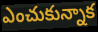
ఎంచుకున్నాక